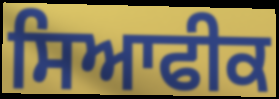
ਸਿਆਫੀਕ